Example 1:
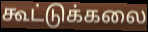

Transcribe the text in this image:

கூட்டுக்கலை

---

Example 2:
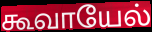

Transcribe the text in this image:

கூவாயேல்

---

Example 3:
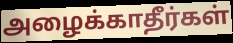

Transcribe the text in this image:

அழைக்காதீர்கள்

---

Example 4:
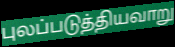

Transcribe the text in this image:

புலப்படுத்தியவாறு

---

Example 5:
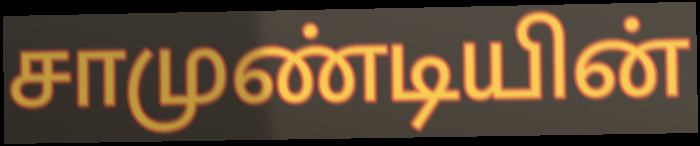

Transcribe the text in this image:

சாமுண்டியின்